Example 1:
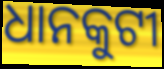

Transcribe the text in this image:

ଧାନକୁଟୀ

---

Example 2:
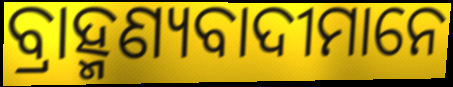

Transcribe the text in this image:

ବ୍ରାହ୍ମଣ୍ୟବାଦୀମାନେ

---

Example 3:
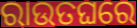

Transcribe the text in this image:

ରାଉତଘରେ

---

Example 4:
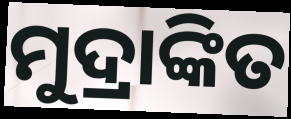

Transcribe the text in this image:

ମୁଦ୍ରାଙ୍କିତ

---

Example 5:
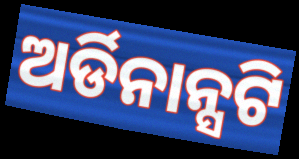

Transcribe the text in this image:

ଅର୍ଡିନାନ୍ସଟି